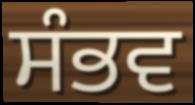
ਸੰਭਵ